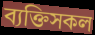
ব্যক্তিসকল